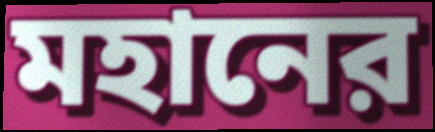
মহানের